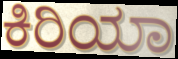
ಕಿರಿಯಾ